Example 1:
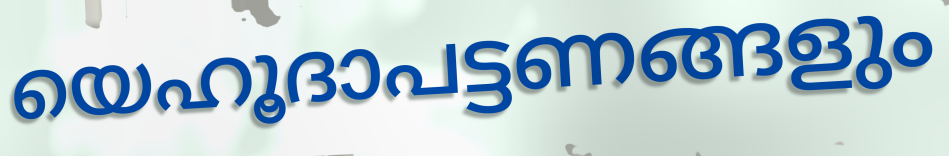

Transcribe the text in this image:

യെഹൂദാപട്ടണങ്ങളും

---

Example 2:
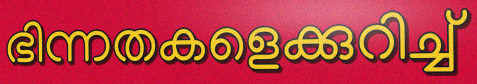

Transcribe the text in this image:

ഭിന്നതകളെക്കുറിച്ച്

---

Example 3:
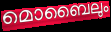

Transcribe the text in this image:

മൊബൈലും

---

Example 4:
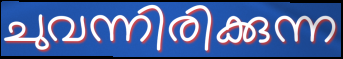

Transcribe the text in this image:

ചുവന്നിരിക്കുന്ന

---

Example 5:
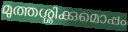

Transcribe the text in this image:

മുത്തശ്ശിക്കുമൊപ്പം